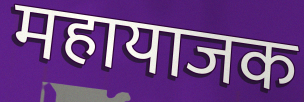
महायाजक